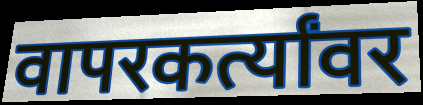
वापरकर्त्यांवर